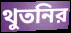
থুতনির